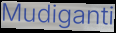
Mudiganti